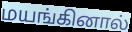
மயங்கினால்